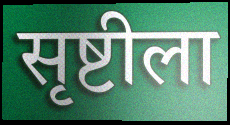
सृष्टीला